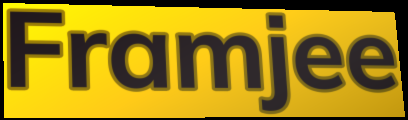
Framjee